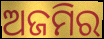
ଅଜମିର